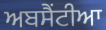
ਅਬਸੈਂਟੀਆ